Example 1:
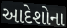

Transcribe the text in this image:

આદેશોના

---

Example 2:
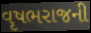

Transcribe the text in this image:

વૃષભરાજની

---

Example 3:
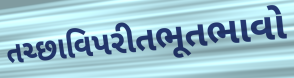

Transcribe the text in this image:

તચ્છાવિપરીતભૂતભાવો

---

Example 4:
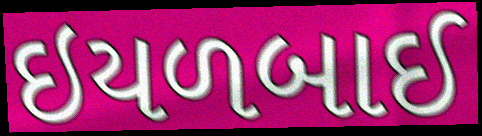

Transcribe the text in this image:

ઇયળબાઈ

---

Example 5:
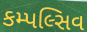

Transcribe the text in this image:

કમ્પલ્સિવ